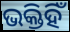
ଭକ୍ତିହିଁ